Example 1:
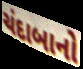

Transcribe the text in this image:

ચંદાબાનો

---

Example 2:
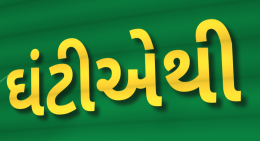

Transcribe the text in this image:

ઘંટીએથી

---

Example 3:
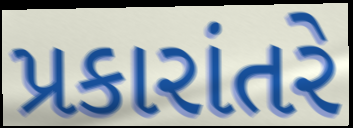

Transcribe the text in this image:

પ્રકારાંતરે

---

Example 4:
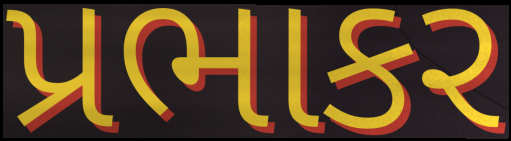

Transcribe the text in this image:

પ્રભાકર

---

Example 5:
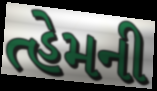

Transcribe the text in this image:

ત્હેમની